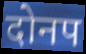
दोनप